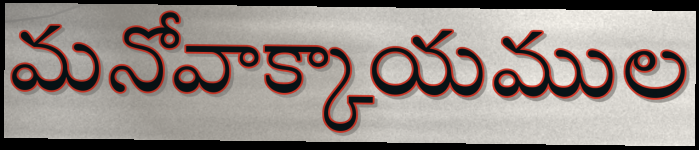
మనోవాక్కాయముల